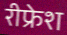
रीफ्रेश